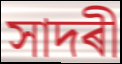
সাদৰী